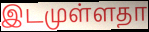
இடமுள்ளதா